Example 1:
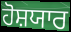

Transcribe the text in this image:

ਹੋਸ਼ਯਾਰ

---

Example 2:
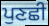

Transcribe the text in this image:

ਪੁਣਛੀ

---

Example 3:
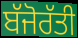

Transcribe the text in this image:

ਬੱਜੋਰੱਤੀ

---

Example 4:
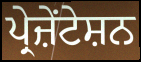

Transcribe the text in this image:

ਪ੍ਰੇਜ਼ੇਂਟੇਸ਼ਨ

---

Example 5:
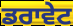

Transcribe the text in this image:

ਡਰਾਵੇਟ